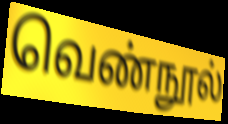
வெண்நூல்